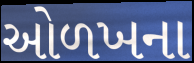
ઓળખના